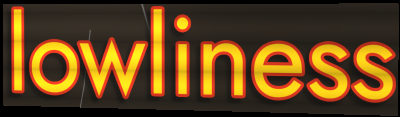
lowliness